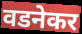
वडनेकर